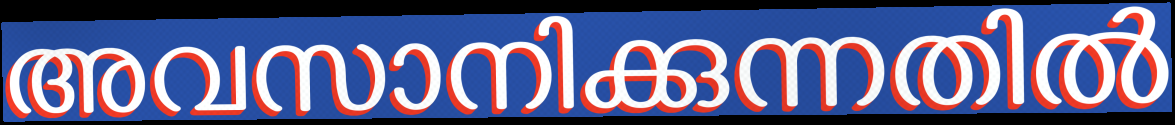
അവസാനിക്കുന്നതിൽ